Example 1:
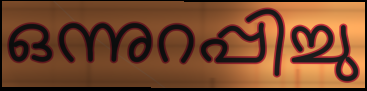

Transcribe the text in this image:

ഒന്നുറപ്പിച്ചു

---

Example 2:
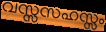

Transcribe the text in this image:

വസ്സസഹസ്സം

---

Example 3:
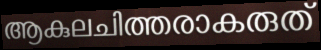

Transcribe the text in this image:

ആകുലചിത്തരാകരുത്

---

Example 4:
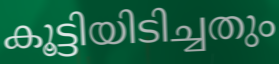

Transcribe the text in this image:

കൂട്ടിയിടിച്ചതും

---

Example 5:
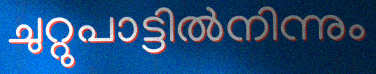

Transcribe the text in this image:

ചുറ്റുപാട്ടിൽനിന്നും